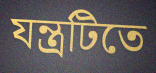
যন্ত্রটিতে